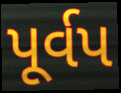
પૂર્વપ